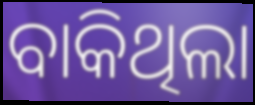
ବାକିଥିଲା